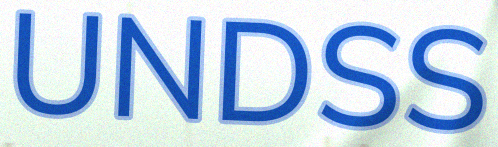
UNDSS